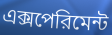
এক্সপেরিমেন্ট